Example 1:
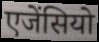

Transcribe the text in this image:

एजेंसियो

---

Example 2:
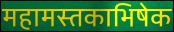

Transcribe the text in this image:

महामस्तकाभिषेक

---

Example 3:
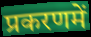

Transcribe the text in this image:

प्रकरणमें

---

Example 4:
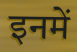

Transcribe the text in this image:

इनमें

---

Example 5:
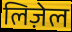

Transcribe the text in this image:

लिज़ेल